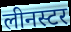
लीनस्टर